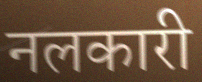
नलकारी